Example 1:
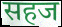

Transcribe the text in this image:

सहज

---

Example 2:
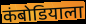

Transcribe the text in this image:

कंबोडियाला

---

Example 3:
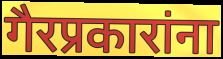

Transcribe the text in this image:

गैरप्रकारांना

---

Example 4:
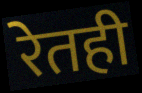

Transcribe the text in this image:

रेतही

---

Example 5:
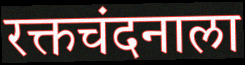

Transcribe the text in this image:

रक्तचंदनाला